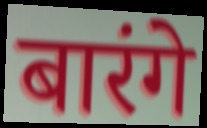
बारंगे